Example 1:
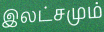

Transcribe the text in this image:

இலட்சமும்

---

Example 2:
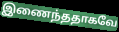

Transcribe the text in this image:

இணைந்ததாகவே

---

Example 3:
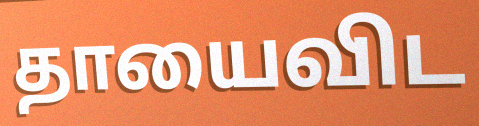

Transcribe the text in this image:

தாயைவிட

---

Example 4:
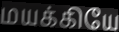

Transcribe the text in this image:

மயக்கியே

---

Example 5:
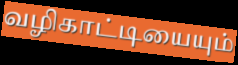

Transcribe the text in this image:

வழிகாட்டியையும்